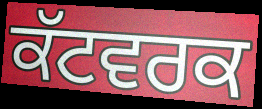
ਕੱਟਵਰਕ